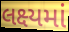
લક્ષ્યમાં